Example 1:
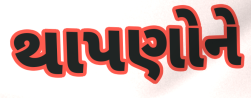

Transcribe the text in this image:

થાપણોને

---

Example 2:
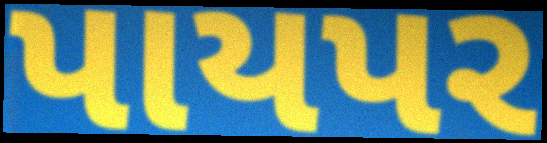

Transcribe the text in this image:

પાયપર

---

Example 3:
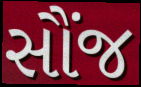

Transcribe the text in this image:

સૌંજ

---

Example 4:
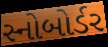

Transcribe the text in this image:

સ્નોબોર્ડર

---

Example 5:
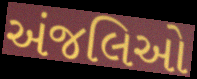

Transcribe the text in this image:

અંજલિઓ